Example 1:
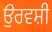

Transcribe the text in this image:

ਉਰਵਸ਼ੀ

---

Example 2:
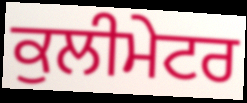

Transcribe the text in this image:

ਕੁਲੀਮੇਟਰ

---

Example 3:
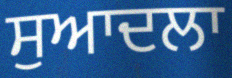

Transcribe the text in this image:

ਸੁਆਦਲਾ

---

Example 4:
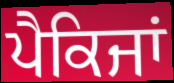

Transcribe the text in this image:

ਪੈਕਿਜਾਂ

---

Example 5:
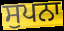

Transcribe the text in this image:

ਸੁਪਨਾ